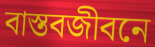
বাস্তবজীবনে